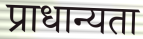
प्राधान्यता